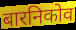
बारनिकोव